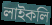
লাইকলি